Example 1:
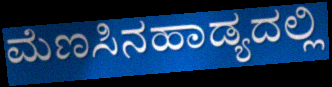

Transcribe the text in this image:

ಮೆಣಸಿನಹಾಡ್ಯದಲ್ಲಿ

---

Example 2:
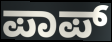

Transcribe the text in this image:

ಪಾಪ್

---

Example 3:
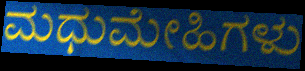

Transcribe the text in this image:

ಮಧುಮೇಹಿಗಳು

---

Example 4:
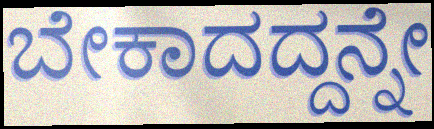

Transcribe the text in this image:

ಬೇಕಾದದ್ದನ್ನೇ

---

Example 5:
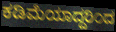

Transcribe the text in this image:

ಕಡಿಮೆಯಾದ್ದರಿಂದ